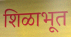
शिळाभूत